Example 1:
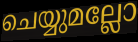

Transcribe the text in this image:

ചെയ്യുമല്ലോ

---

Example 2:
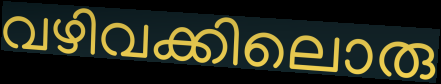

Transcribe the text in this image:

വഴിവക്കിലൊരു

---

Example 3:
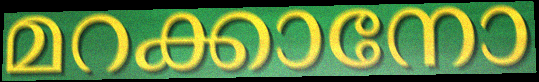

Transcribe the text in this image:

മറക്കാനോ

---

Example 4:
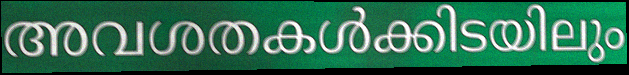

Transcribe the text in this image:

അവശതകൾക്കിടയിലും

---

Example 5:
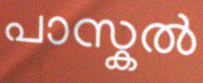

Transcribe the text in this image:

പാസ്കൽ